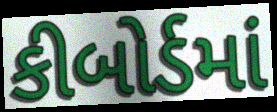
કીબોર્ડમાં